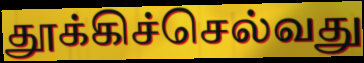
தூக்கிச்செல்வது